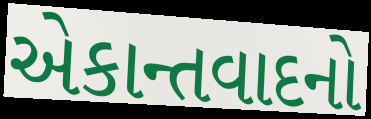
એકાન્તવાદનો